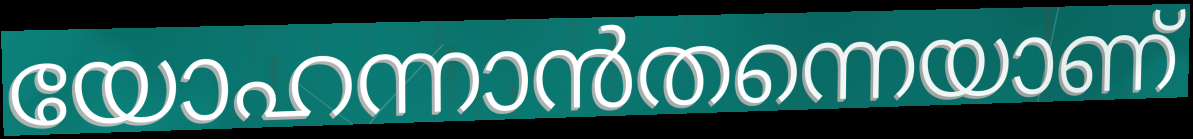
യോഹന്നാൻതന്നെയാണ്